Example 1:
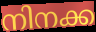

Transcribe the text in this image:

നിനക്ക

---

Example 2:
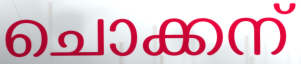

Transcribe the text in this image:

ചൊക്കന്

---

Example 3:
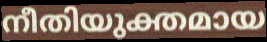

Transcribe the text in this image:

നീതിയുക്തമായ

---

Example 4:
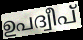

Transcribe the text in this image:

ഉപദ്വീപ്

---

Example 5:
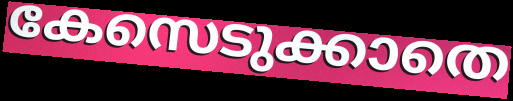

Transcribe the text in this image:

കേസെടുക്കാതെ